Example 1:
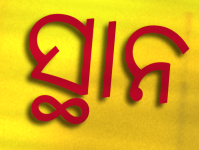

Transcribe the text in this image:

ସ୍ଥାନ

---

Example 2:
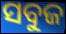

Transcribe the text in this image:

ସବୁଜ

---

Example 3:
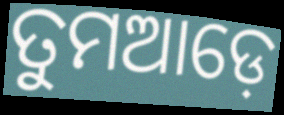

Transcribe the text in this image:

ତୁମଆଡ଼େ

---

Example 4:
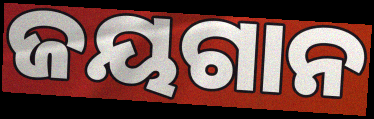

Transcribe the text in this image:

ଜୟଗାନ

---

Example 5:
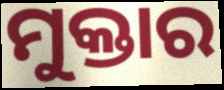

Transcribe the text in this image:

ମୁକ୍ତାର